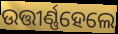
ଉତ୍ତୀର୍ଣ୍ଣହେଲେ